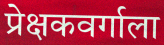
प्रेक्षकवर्गाला